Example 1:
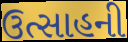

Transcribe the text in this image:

ઉત્સાહની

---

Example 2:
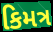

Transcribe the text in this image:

કિમત્ર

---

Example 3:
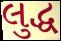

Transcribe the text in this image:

લુદ્ધ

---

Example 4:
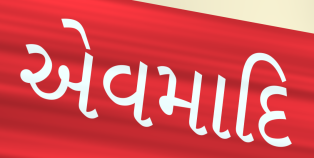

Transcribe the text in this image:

એવમાદિ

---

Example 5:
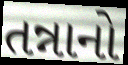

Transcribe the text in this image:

તન્નાનો